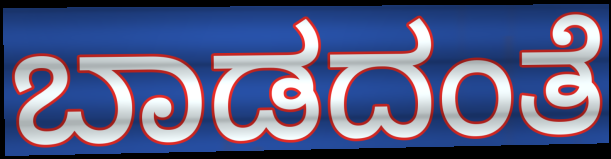
ಬಾಡದಂತೆ